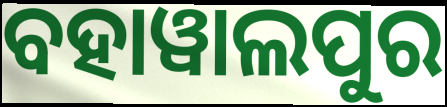
ବହାୱାଲପୁର